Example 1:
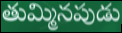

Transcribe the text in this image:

తుమ్మినపుడు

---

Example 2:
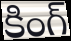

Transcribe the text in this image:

కింగ్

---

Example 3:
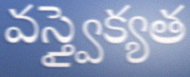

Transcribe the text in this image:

వస్త్వైక్యత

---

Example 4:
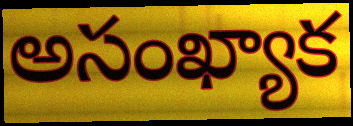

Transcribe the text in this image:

అసంఖ్యాక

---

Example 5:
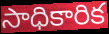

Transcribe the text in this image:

సాధికారిక